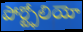
పోర్ట్ఫోలియో